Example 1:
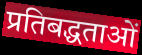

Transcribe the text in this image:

प्रतिबद्धताओं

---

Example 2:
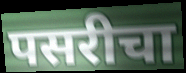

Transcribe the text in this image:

पसरीचा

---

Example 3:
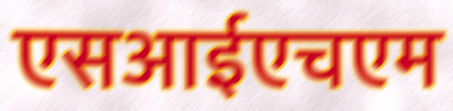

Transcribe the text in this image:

एसआईएचएम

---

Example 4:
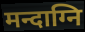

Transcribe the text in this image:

मन्दाग्नि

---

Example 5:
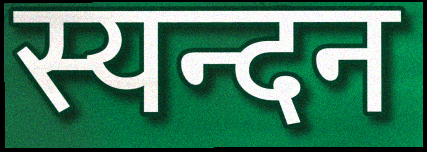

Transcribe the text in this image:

स्यन्दन